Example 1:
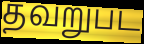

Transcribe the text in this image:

தவறுபட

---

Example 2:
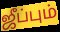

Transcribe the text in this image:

ஜீப்பும்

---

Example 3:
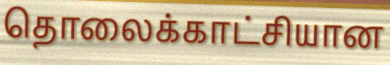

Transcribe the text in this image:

தொலைக்காட்சியான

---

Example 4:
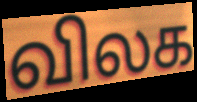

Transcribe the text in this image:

விலக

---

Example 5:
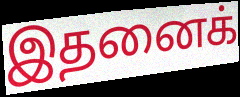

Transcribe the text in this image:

இதனைக்